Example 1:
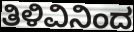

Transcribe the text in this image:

ತಿಳಿವಿನಿಂದ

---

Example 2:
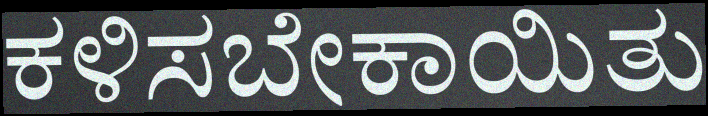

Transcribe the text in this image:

ಕಳಿಸಬೇಕಾಯಿತು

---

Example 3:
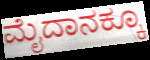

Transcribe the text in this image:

ಮೈದಾನಕ್ಕೂ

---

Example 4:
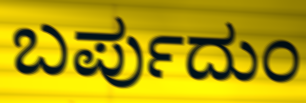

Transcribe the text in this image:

ಬರ್ಪುದುಂ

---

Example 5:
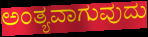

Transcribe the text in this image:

ಅಂತ್ಯವಾಗುವುದು